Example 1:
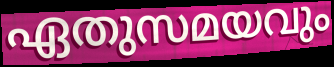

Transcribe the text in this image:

ഏതുസമയവും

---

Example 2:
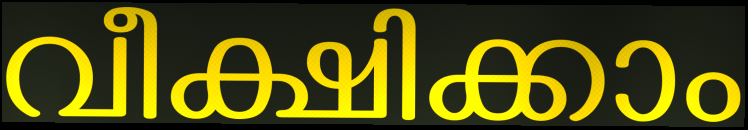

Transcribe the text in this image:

വീക്ഷിക്കാം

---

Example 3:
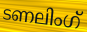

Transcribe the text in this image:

ടണലിംഗ്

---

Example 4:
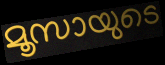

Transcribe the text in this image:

മൂസായുടെ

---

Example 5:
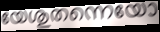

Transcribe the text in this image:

യേശുതന്നെയോ